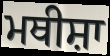
ਮਥੀਸ਼ਾ